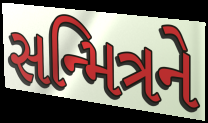
સન્મિત્રને